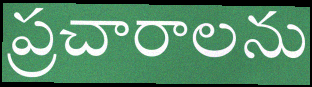
ప్రచారాలను